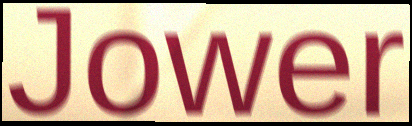
Jower